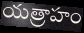
యత్రాహం